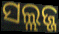
ସଲ୍ଲଜ୍ଜ